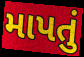
માપતું